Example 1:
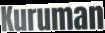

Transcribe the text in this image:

Kuruman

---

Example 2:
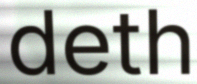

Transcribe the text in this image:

deth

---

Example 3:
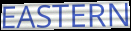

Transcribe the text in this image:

EASTERN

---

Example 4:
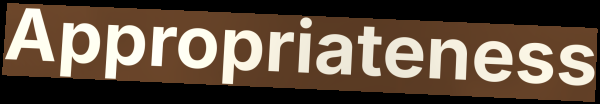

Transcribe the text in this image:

Appropriateness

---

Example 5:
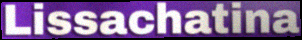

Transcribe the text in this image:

Lissachatina